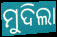
ମୁଦିଲା